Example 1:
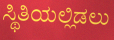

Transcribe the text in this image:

ಸ್ಥಿತಿಯಲ್ಲಿಡಲು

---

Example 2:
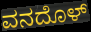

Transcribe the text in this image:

ವನದೊಳ್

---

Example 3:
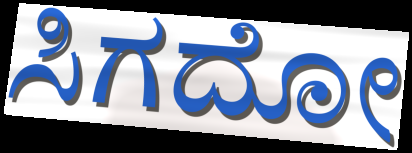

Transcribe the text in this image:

ಸಿಗದೋ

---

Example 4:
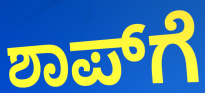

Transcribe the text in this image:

ಶಾಪ್‌ಗೆ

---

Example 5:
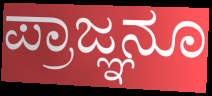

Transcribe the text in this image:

ಪ್ರಾಜ್ಞನೂ